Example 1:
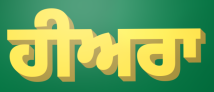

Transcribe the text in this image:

ਹੀਅਰਾ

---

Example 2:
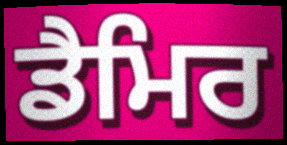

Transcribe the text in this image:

ਡੈਮਿਰ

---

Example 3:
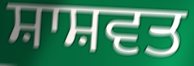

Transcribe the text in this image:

ਸ਼ਾਸ਼ਵਤ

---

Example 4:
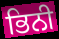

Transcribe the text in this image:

ਭਿਨੀ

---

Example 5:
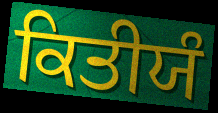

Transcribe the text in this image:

ਕਿਤੀਯੰ